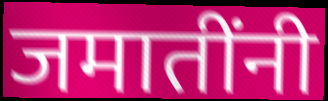
जमातींनी